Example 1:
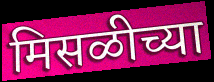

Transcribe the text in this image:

मिसळीच्या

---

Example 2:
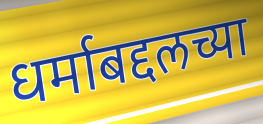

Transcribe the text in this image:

धर्माबद्दलच्या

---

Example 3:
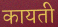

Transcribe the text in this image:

कायती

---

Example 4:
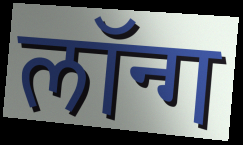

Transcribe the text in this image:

लॉन्ग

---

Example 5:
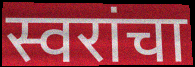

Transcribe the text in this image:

स्वरांचा